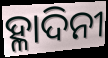
ହ୍ଳାଦିନୀ